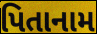
પિતાનામ